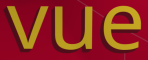
vue